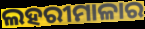
ଲହରୀମାଳାର